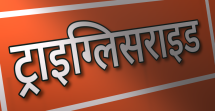
ट्राइग्लिसराइड